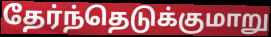
தேர்ந்தெடுக்குமாறு